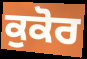
ਕੁਕੋਰ